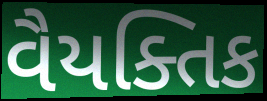
વૈયક્તિક